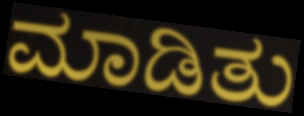
ಮಾಡಿತು